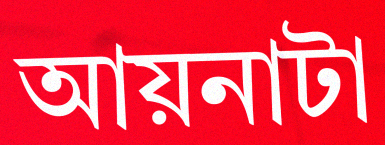
আয়নাটা